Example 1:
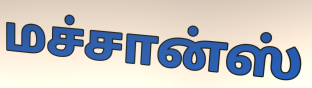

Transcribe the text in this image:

மச்சான்ஸ்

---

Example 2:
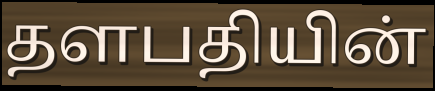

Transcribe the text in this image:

தளபதியின்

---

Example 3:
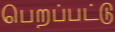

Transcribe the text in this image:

பெறப்பட்டு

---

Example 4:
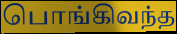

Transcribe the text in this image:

பொங்கிவந்த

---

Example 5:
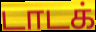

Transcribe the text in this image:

டாடக்